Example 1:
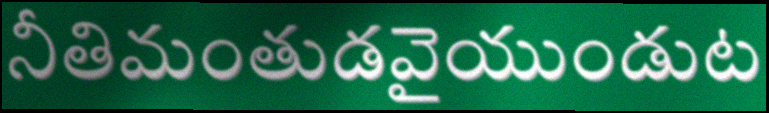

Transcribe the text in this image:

నీతిమంతుడవైయుండుట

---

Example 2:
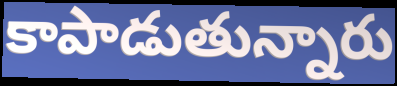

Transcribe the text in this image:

కాపాడుతున్నారు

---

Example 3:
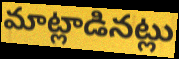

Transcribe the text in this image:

మాట్లాడినట్లు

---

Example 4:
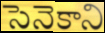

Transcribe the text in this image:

సెనెకాని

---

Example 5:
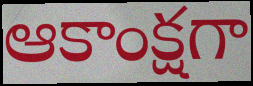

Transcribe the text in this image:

ఆకాంక్షగా